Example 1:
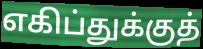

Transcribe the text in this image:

எகிப்துக்குத்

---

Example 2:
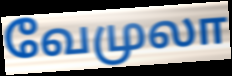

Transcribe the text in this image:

வேமுலா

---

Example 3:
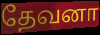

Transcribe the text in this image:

தேவனா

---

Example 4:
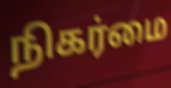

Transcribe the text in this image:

நிகர்மை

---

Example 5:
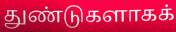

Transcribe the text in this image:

துண்டுகளாகக்